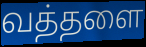
வத்தளை